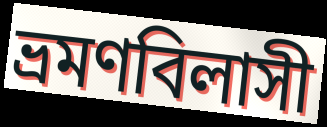
ভ্রমণবিলাসী